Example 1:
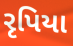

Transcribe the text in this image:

રૃપિયા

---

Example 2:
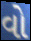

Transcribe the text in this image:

વો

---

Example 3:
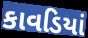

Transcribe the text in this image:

કાવડિયાં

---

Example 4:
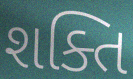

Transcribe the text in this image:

શક્તિ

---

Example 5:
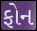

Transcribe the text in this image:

ફોન